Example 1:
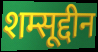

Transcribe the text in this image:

शम्सूद्दीन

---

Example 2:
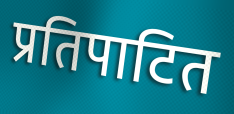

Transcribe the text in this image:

प्रतिपाटित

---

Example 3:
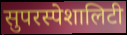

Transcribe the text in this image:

सुपरस्पेशालिटी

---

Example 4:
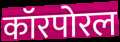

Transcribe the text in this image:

कॉरपोरल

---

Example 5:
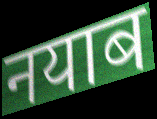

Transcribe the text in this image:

नयाब